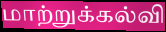
மாற்றுக்கல்வி